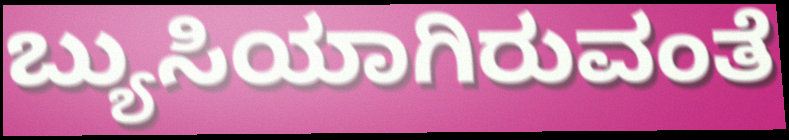
ಬ್ಯುಸಿಯಾಗಿರುವಂತೆ